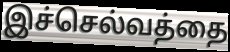
இச்செல்வத்தை